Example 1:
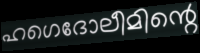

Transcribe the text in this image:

ഹഗെദോലീമിന്റെ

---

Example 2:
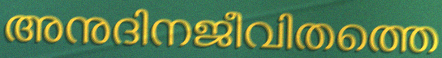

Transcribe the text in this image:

അനുദിനജീവിതത്തെ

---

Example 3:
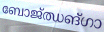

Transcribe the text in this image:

ബോജ്ഝങ്ഗാ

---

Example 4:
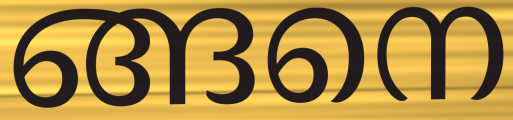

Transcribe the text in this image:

ങ്ങനെ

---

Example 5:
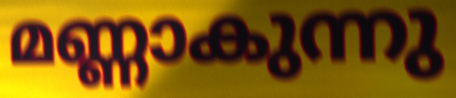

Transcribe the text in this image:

മണ്ണാകുന്നു